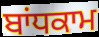
ਬਾਂਧਕਾਮ